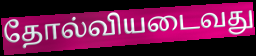
தோல்வியடைவது